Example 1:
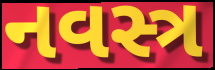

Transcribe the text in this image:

નવસ્ત્ર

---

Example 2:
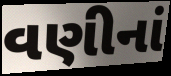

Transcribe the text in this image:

વણીનાં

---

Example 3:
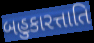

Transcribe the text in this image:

બહુકારત્તાતિ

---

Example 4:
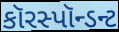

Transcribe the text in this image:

કૉરસ્પૉન્ડન્ટ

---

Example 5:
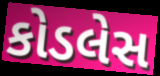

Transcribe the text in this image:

કોડલેસ